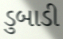
ડુબાડી